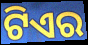
ଟିଏର